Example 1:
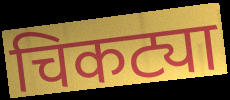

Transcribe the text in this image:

चिकट्या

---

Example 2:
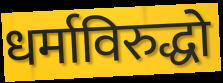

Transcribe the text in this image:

धर्माविरुद्धो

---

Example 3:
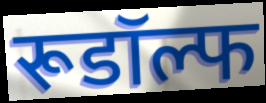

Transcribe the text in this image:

रूडॉल्फ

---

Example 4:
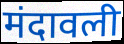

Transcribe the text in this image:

मंदावली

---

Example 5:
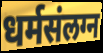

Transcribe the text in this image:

धर्मसंलग्न